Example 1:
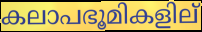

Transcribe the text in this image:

കലാപഭൂമികളില്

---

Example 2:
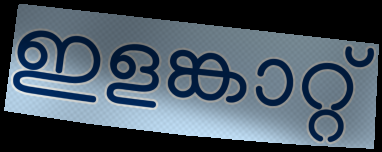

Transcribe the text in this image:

ഇളങ്കാറ്റ്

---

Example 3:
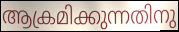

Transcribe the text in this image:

ആക്രമിക്കുന്നതിനു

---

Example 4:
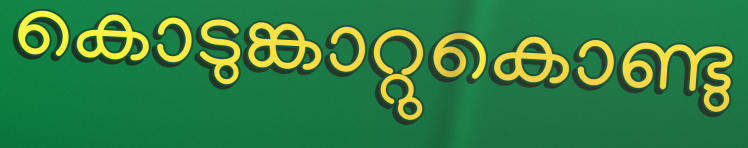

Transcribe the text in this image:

കൊടുങ്കാറ്റുകൊണ്ടു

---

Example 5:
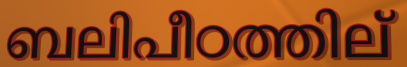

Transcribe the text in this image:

ബലിപീഠത്തില്